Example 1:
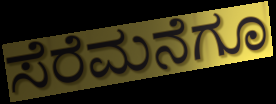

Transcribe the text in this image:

ಸೆರೆಮನೆಗೂ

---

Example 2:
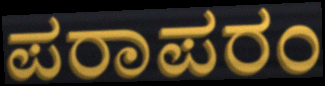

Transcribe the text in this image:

ಪರಾಪರಂ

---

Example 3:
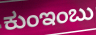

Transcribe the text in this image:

ಕುಂಇಂಬು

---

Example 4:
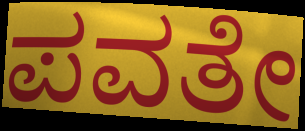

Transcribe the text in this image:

ಪವತೇ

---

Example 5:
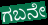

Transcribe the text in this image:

ಗಬನೇ